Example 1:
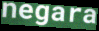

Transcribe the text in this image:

negara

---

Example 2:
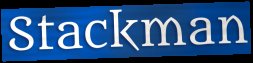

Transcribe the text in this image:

Stackman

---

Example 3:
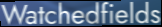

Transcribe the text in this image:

Watchedfields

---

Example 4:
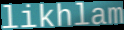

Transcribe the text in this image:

likhlam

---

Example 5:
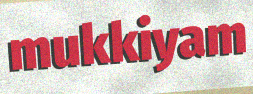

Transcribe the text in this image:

mukkiyam